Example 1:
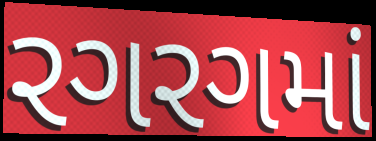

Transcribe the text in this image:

રગરગમાં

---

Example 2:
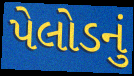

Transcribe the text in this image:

પેલોડનું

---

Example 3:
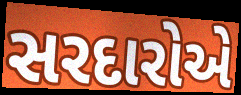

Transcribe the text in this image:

સરદારોએ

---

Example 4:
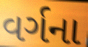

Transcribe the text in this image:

વર્ગના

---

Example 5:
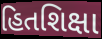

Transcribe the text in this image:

હિતશિક્ષા